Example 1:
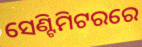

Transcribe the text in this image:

ସେଣ୍ଟିମିଟରରେ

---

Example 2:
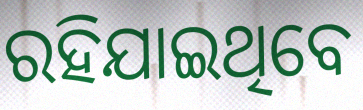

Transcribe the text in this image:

ରହିଯାଇଥିବେ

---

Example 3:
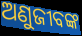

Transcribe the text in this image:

ଅଣୁଜୀବଙ୍କ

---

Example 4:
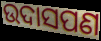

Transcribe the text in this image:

ଉଦାସପଣ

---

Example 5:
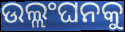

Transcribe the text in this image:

ଉଲ୍ଲଂଘନକୁ